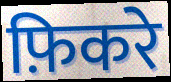
फ़िकरे